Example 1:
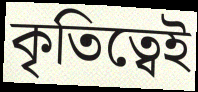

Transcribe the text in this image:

কৃতিত্বেই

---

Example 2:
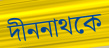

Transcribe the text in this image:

দীননাথকে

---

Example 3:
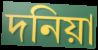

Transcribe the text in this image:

দনিয়া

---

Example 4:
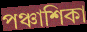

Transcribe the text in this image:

পঞ্চাশিকা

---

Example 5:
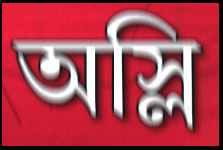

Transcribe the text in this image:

অস্লি